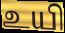
உயி